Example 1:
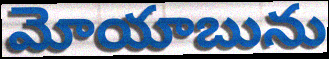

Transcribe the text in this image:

మోయాబును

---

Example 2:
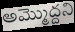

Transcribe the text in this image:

అమ్మొద్దని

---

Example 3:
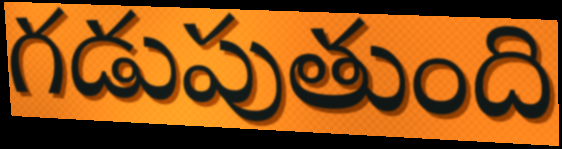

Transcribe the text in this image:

గడుపుతుంది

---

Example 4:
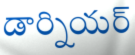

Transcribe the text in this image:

డార్నియర్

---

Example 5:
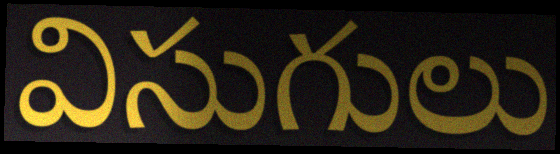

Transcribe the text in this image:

విసుగులు